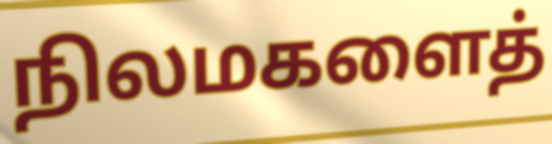
நிலமகளைத்